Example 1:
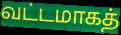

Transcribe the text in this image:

வட்டமாகத்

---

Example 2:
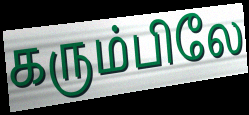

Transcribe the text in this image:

கரும்பிலே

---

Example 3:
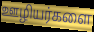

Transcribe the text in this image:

ஊழியர்களை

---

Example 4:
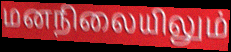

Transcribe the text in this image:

மனநிலையிலும்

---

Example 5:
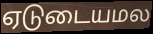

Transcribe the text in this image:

ஏடுடையமல